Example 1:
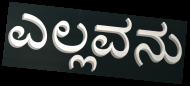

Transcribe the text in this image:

ಎಲ್ಲವನು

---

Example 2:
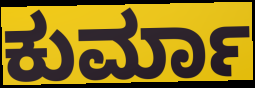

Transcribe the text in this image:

ಕುರ್ಮಾ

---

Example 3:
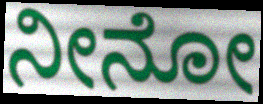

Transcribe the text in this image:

ನೀನೋ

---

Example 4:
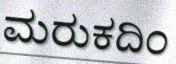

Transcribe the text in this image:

ಮರುಕದಿಂ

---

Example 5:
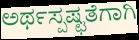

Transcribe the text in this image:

ಅರ್ಥಸ್ಪಷ್ಟತೆಗಾಗಿ